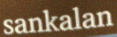
sankalan